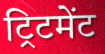
ट्रिटमेंट